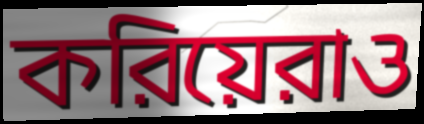
করিয়েরাও